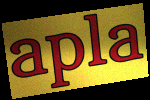
apla